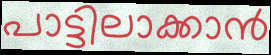
പാട്ടിലാക്കാൻ